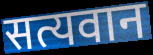
सत्यवान